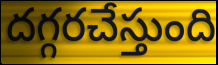
దగ్గరచేస్తుంది